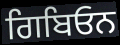
ਗਿਬਿਓਨ